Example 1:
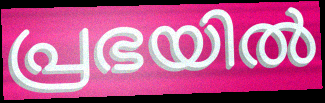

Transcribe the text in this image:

പ്രഭയിൽ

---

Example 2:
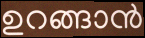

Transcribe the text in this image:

ഉറങ്ങാൻ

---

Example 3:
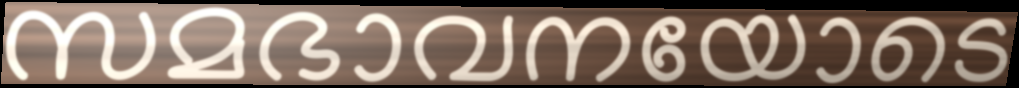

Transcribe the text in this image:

സമഭാവനയോടെ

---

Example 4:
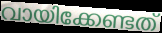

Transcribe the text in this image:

വായിക്കേണ്ടത്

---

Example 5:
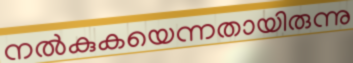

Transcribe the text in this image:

നൽകുകയെന്നതായിരുന്നു